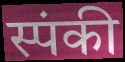
स्पंकी